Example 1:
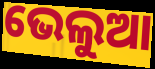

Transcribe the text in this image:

ଭେଲୁଆ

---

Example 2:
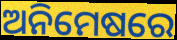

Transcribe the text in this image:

ଅନିମେଷରେ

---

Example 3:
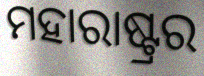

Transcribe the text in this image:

ମହାରାଷ୍ଟ୍ରର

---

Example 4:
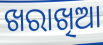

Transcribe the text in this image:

ଖରାଖିଆ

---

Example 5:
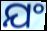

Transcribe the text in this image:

ଯଂ